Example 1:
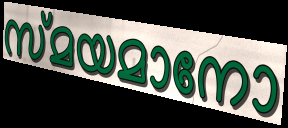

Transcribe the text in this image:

സ്മയമാനോ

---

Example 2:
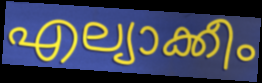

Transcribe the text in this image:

എല്യാക്കീം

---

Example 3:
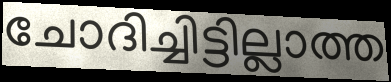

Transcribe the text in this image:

ചോദിച്ചിട്ടില്ലാത്ത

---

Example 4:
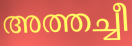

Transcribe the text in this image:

അത്തച്ചീ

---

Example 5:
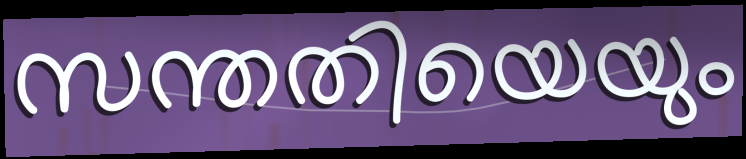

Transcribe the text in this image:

സന്തതിയെയും